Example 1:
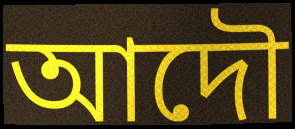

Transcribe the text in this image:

আদৌ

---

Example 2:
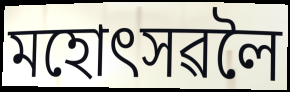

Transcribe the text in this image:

মহোৎসৱলৈ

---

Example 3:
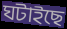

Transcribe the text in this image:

ঘটাইছে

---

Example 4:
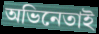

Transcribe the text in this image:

অভিনেতাই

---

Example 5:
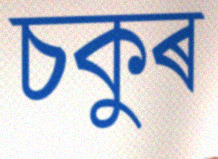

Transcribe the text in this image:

চকুৰ